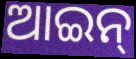
ଆଇନ୍